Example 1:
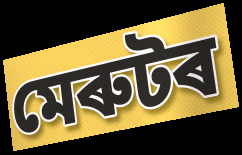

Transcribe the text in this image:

মেৰুটৰ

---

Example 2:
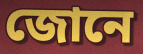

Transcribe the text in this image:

জোনে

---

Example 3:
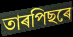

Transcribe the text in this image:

তাৰপিছৰে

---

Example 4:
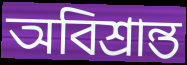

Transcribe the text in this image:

অবিশ্ৰান্ত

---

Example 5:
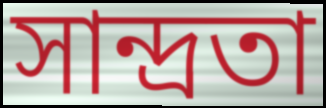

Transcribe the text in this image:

সান্দ্ৰতা